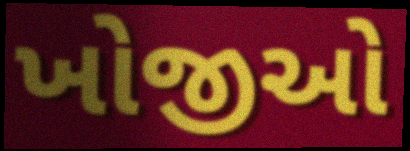
ખોજીઓ